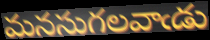
మనసుగలవాఁడు